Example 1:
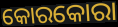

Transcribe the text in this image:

କୋରକୋରା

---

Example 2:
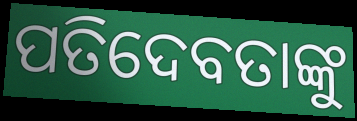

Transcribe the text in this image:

ପତିଦେବତାଙ୍କୁ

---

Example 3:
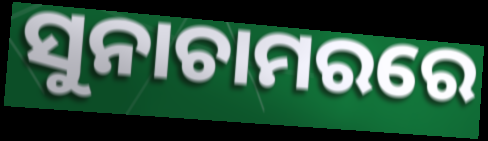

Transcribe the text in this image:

ସୁନାଚାମରରେ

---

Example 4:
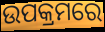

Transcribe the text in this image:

ଉପକ୍ରମରେ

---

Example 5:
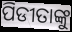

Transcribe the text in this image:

ପିଡୀତାଙ୍କୁ